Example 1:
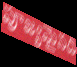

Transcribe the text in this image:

పూజ్యమైనది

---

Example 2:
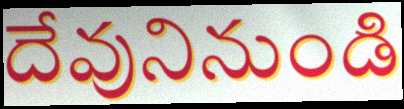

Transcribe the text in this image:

దేవునినుండి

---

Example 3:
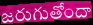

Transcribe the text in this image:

జరుగుతోందా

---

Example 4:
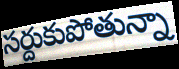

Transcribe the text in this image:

సర్దుకుపోతున్నా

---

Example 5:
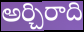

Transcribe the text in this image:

అర్చిరాది